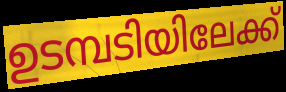
ഉടമ്പടിയിലേക്ക്